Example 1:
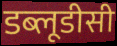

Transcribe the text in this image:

डब्लूडीसी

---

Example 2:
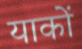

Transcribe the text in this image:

याकों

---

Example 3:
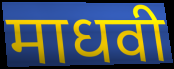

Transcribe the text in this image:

माधवी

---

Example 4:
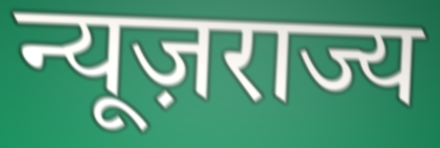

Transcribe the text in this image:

न्यूज़राज्य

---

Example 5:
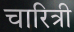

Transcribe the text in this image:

चारित्री